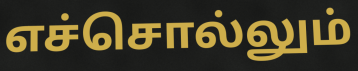
எச்சொல்லும்